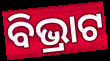
ବିଭ୍ରାଟ